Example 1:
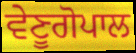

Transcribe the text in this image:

ਵੇਣੂਗੋਪਾਲ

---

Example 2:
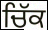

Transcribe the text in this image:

ਚਿੱਕ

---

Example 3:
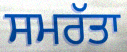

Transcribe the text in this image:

ਸਮਰੱਤਾ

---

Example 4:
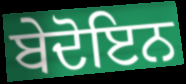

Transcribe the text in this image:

ਬੇਦੋਇਨ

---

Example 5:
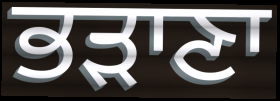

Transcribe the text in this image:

ਭੜਾਣਾ